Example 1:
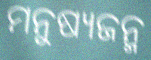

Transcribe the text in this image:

ମନୁଷ୍ୟଜନ୍ମ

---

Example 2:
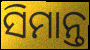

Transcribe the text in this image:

ସିମାନ୍ତ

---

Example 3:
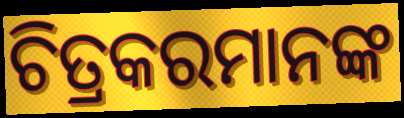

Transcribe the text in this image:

ଚିତ୍ରକରମାନଙ୍କ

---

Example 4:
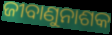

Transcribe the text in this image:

ଜୀବାଣୁନାଶକ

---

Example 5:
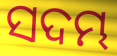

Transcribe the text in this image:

ସଦମ୍ଭ